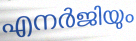
എനർജിയും